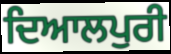
ਦਿਆਲਪੁਰੀ